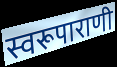
स्वरूपाराणी